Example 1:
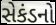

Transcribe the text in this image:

સેકંડનો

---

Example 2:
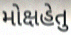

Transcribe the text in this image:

મોક્ષહેતુ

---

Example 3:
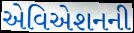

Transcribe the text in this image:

એવિએશનની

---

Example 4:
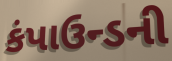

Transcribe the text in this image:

કંપાઉન્ડની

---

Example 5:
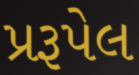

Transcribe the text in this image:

પ્રરૂપેલ